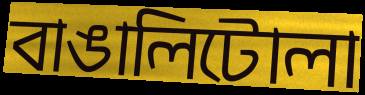
বাঙালিটোলা